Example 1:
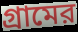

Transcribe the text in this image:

গ্রামের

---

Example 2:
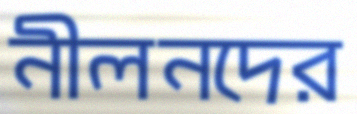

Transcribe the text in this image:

নীলনদের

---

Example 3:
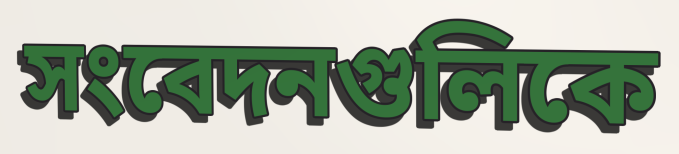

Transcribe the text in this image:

সংবেদনগুলিকে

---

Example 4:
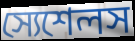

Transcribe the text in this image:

স্যেশেলস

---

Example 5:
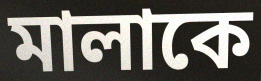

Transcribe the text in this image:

মালাকে